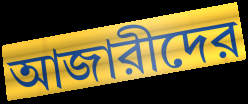
আজারীদের